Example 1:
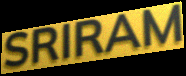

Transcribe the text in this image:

SRIRAM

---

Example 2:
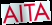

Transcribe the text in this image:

AITA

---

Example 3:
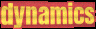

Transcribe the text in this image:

dynamics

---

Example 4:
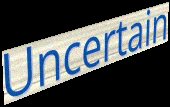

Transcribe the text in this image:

Uncertain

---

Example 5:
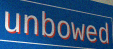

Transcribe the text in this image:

unbowed